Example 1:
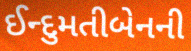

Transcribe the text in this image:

ઈન્દુમતીબેનની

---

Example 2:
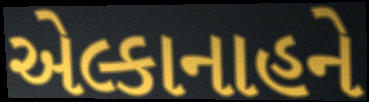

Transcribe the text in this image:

એલ્કાનાહને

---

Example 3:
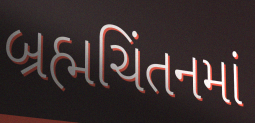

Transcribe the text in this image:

બ્રહ્મચિંતનમાં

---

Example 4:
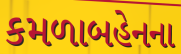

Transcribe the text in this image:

કમળાબહેનના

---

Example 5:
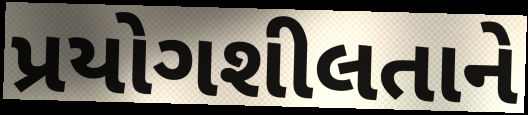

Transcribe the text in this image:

પ્રયોગશીલતાને